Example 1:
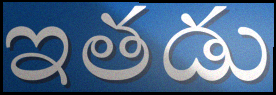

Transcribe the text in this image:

ఇతడు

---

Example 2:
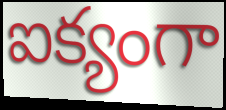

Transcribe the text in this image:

ఐక్యంగా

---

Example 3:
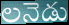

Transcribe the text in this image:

లనెడు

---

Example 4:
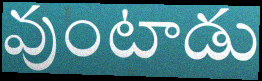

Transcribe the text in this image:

వుంటాడు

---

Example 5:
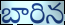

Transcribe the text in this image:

బారిన